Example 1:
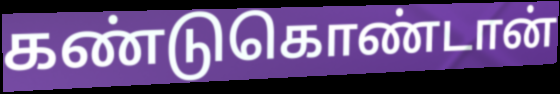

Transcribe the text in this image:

கண்டுகொண்டான்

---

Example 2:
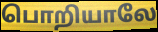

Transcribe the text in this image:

பொறியாலே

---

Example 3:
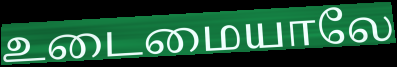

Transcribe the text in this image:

உடைமையாலே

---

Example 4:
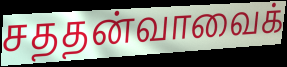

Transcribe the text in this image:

சததன்வாவைக்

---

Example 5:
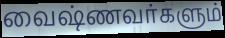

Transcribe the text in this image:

வைஷ்ணவர்களும்